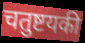
चतुष्टयकी